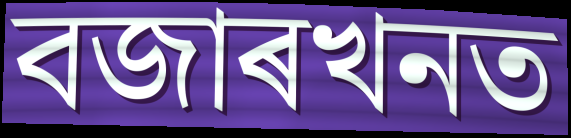
বজাৰখনত